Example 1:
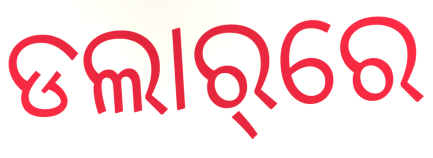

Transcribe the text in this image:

ଡଲାର୍‌ରେ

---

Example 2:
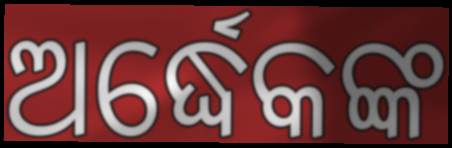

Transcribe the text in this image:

ଅର୍ଦ୍ଧେକଙ୍କ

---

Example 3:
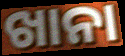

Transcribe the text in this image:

ଖାନା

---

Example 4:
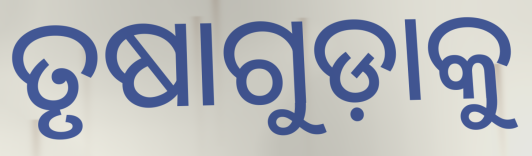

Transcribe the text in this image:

ତୃଷାଗୁଡ଼ାକୁ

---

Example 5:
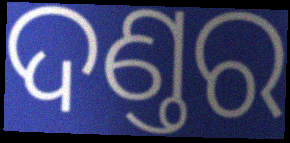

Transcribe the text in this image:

ଦଣ୍ତର